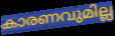
കാരണവുമില്ല